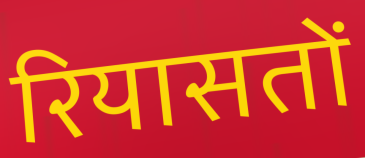
रियासतों